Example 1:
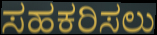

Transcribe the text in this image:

ಸಹಕರಿಸಲು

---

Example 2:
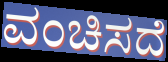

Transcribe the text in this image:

ವಂಚಿಸದೆ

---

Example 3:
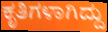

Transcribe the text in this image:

ಕೃತಿಗಳಾಗಿದ್ದು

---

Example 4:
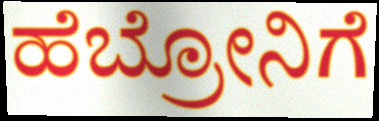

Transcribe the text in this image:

ಹೆಬ್ರೋನಿಗೆ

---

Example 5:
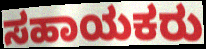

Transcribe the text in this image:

ಸಹಾಯಕರು